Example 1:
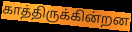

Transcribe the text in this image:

காத்திருக்கின்றன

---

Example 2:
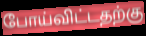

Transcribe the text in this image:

போய்விட்டதற்கு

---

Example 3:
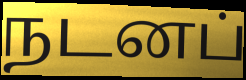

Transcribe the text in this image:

நடனப்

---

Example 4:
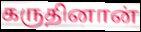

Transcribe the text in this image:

கருதினான்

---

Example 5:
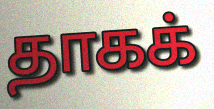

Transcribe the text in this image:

தாகக்